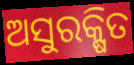
ଅସୁରକ୍ଷିତ